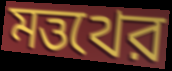
মত্তথের